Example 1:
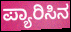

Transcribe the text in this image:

ಪ್ಯಾರಿಸಿನ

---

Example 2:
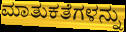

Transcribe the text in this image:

ಮಾತುಕತೆಗಳನ್ನು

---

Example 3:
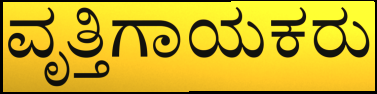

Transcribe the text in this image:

ವೃತ್ತಿಗಾಯಕರು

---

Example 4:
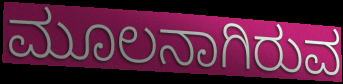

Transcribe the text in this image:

ಮೂಲನಾಗಿರುವ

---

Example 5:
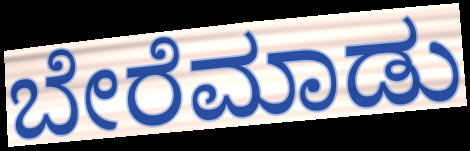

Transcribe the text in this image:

ಬೇರೆಮಾಡು